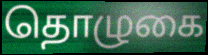
தொழுகை